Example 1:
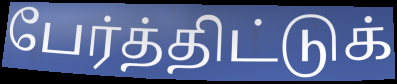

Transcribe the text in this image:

பேர்த்திட்டுக்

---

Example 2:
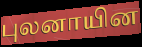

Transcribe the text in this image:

புலனாயின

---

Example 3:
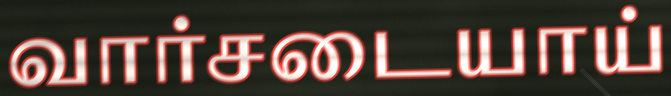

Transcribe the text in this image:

வார்சடையாய்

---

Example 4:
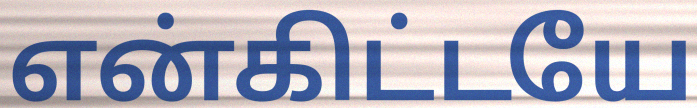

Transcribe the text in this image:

என்கிட்டயே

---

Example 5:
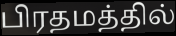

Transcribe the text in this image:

பிரதமத்தில்